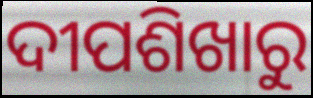
ଦୀପଶିଖାରୁ